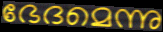
ഭേദമെന്നു